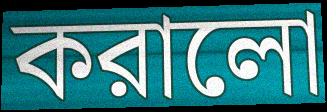
করালো